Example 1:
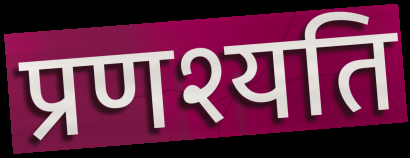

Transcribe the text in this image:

प्रणश्यति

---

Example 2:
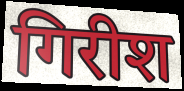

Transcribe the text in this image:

गिरीश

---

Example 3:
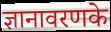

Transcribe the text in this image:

ज्ञानावरणके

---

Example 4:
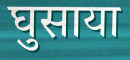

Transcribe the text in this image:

घुसाया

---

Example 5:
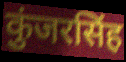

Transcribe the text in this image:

कुंजरसिंह